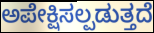
ಅಪೇಕ್ಷಿಸಲ್ಪಡುತ್ತದೆ